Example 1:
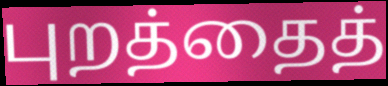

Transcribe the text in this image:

புறத்தைத்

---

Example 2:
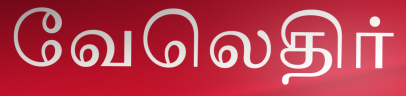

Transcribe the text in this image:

வேலெதிர்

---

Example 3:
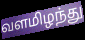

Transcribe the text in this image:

வளமிழந்து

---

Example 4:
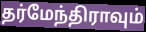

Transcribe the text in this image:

தர்மேந்திராவும்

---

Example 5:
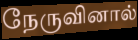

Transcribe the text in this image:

நேருவினால்